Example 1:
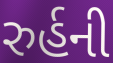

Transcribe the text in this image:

રુર્હની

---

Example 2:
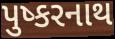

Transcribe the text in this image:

પુષ્કરનાથ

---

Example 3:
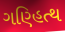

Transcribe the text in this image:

ગણ્હિત્થ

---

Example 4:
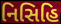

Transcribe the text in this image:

નિસિહિ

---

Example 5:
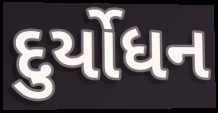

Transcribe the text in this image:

દુર્યોધન